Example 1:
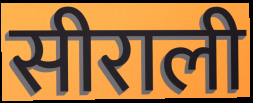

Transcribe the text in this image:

सीराली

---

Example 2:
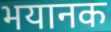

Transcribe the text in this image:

भयानक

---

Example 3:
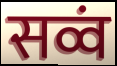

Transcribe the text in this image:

सव्वं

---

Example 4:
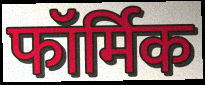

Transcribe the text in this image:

फॉर्मिक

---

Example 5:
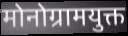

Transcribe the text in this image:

मोनोग्रामयुक्त